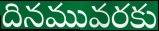
దినమువరకు